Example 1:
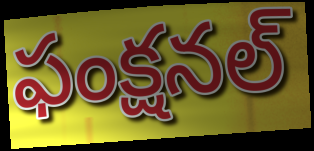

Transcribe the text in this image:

ఫంక్షనల్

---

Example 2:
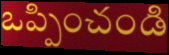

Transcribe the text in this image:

ఒప్పించండి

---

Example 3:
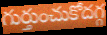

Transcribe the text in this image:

గుర్తుంచుకోదగ్గ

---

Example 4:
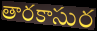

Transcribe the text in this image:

తారకాసుర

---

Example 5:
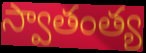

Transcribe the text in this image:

స్వాతంత్య